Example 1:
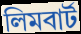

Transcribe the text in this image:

লিমবার্ট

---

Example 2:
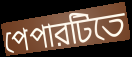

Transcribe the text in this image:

পেপারটিতে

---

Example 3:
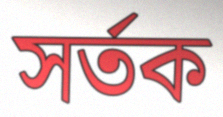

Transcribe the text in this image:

সর্তক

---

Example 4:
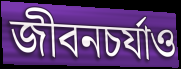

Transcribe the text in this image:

জীবনচর্যাও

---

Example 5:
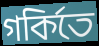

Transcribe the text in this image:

গর্কিতে